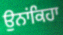
ਉਨਾਂਕਿਹਾ